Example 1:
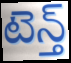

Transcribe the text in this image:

టెన్త్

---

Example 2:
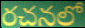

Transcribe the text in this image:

రచనలో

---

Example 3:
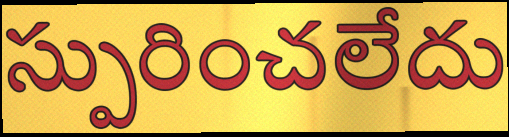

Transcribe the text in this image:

స్పురించలేదు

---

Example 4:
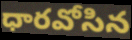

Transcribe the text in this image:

ధారవోసిన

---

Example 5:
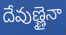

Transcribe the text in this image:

దేవుణ్ణైనా